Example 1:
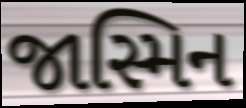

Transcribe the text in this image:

જાસ્મિન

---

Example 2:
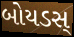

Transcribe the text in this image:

બોયડસ્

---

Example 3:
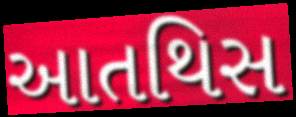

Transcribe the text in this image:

આતથિસ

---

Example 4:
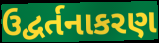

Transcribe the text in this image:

ઉદ્વર્તનાકરણ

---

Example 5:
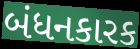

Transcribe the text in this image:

બંધનકારક